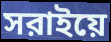
সরাইয়ে